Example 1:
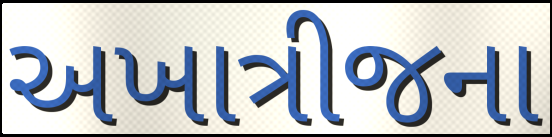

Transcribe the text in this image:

અખાત્રીજના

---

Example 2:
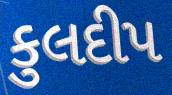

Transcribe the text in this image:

કુલદીપ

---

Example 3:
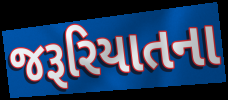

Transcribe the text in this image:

જરૂરિયાતના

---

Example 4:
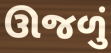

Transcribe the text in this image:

ઊજળું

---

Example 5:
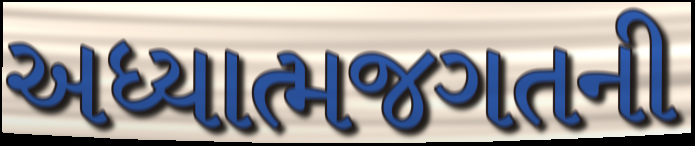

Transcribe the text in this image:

અધ્યાત્મજગતની